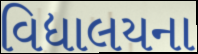
વિદ્યાલયના